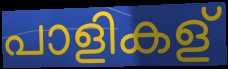
പാളികള്